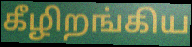
கீழிறங்கிய